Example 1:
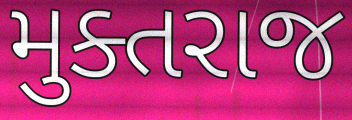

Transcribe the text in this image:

મુક્તરાજ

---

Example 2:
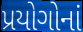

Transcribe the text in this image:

પ્રયોગોનાં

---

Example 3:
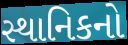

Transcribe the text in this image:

સ્થાનિકનો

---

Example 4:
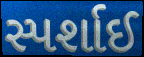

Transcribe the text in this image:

સ્પર્શાઈ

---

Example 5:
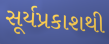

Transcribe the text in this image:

સૂર્યપ્રકાશથી